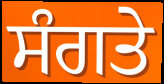
ਸੰਗਤੇ